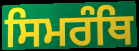
ਸਿਮਰੰਥਿ